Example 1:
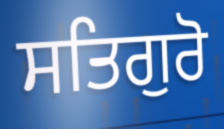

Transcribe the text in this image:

ਸਤਿਗੁਰੋ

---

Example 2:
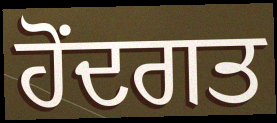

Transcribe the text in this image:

ਹੋਂਦਗਤ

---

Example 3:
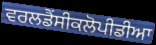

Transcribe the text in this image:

ਵਰਲਡੈਂਸੀਕਲੋਪੀਡੀਆ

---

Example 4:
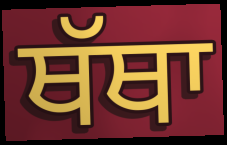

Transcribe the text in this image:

ਥੱਥਾ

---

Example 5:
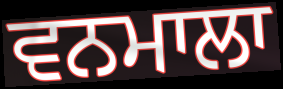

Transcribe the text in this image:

ਵਨਮਾਲਾ